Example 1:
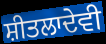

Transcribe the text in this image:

ਸ਼ੀਤਲਾਦੇਵੀ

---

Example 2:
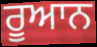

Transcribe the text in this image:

ਰੂਆਨ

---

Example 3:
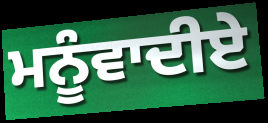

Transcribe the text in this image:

ਮਨੂੰਵਾਦੀਏ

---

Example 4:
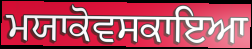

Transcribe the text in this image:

ਮਯਾਕੋਵਸਕਾਇਆ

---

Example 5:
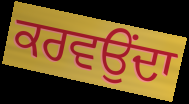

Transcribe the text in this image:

ਕਰਵਉਂਦਾ